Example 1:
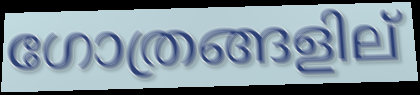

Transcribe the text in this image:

ഗോത്രങ്ങളില്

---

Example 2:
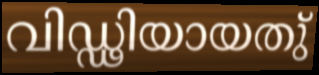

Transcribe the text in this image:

വിഡ്ഢിയായതു്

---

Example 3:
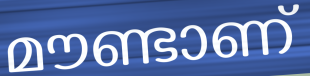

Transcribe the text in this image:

മൗണ്ടാണ്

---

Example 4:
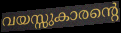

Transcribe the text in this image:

വയസ്സുകാരന്റെ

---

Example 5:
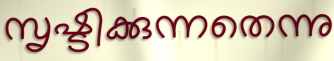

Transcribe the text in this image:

സൃഷ്ടിക്കുന്നതെന്നു